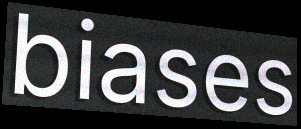
biases